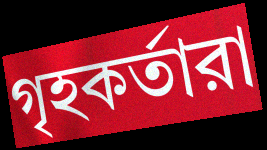
গৃহকর্তারা